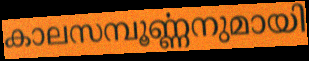
കാലസമ്പൂൎണ്ണനുമായി